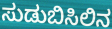
ಸುಡುಬಿಸಿಲಿನ